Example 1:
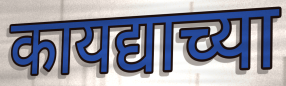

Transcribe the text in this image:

कायद्याच्या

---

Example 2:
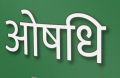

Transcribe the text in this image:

ओषधि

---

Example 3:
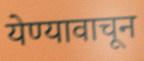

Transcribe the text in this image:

येण्यावाचून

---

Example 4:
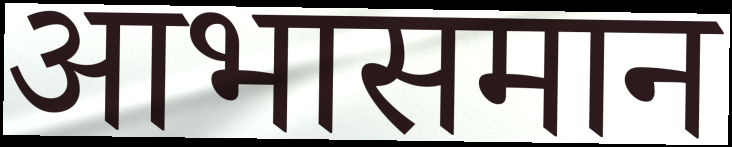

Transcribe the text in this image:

आभासमान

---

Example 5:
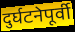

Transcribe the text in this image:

दुर्घटनेपूर्वी